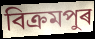
বিক্ৰমপুৰ